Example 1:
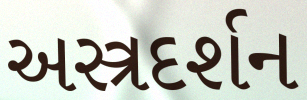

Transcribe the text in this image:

અસ્ત્રદર્શન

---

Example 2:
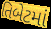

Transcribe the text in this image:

તિબેટમાં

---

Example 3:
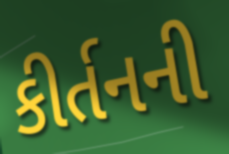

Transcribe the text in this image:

કીર્તનની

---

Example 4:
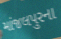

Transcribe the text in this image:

માંજલપુરના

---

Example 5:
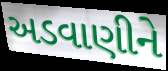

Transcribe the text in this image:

અડવાણીને